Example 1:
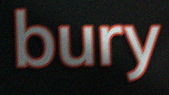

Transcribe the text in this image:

bury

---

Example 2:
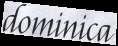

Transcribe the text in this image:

dominica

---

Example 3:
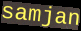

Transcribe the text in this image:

samjan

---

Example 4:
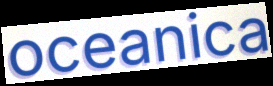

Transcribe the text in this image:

oceanica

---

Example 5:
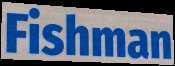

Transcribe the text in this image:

Fishman